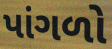
પાંગળો